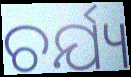
ଚର୍ଯ୍ୟ